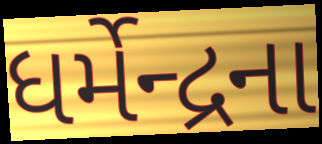
ધર્મેન્દ્રના